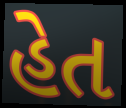
હેત